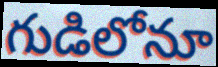
గుడిలోనూ